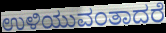
ಉಳಿಯುವಂತಾದರೆ